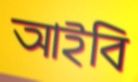
আইবি